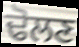
ਢੋਲਣ